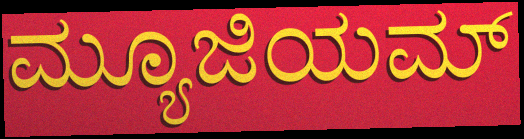
ಮ್ಯೂಜಿಯಮ್